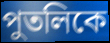
পুতলিকে